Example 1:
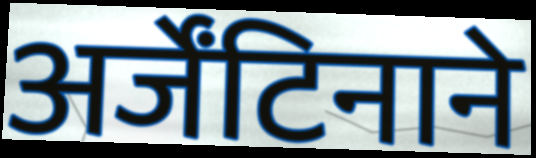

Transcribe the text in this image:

अर्जेंटिनाने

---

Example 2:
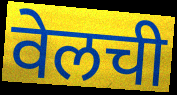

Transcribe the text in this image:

वेलची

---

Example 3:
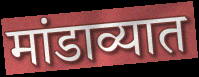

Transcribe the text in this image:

मांडाव्यात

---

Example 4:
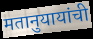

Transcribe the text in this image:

मतानुयायांची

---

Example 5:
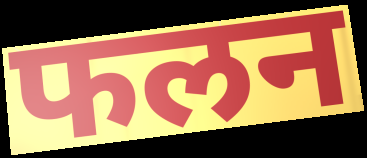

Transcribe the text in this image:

फलन